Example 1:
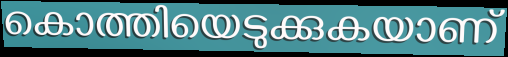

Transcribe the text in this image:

കൊത്തിയെടുക്കുകയാണ്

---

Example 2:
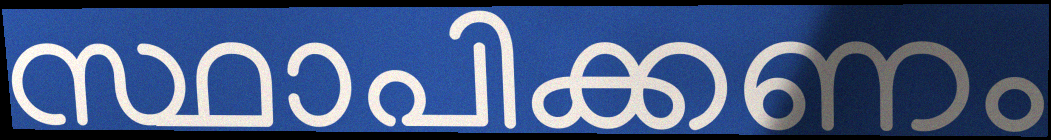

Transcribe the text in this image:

സ്ഥാപിക്കണം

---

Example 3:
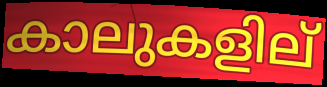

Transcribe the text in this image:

കാലുകളില്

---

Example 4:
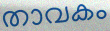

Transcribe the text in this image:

താവകം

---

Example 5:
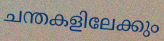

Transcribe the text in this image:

ചന്തകളിലേക്കും